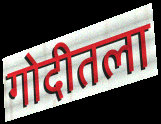
गोदीतला